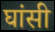
घांसी